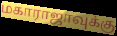
மகாராஜாவுக்கு